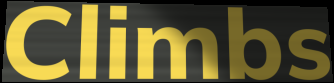
Climbs